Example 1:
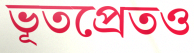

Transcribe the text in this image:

ভূতপ্রেতও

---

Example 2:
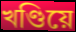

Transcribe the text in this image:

খণ্ডিয়ে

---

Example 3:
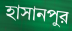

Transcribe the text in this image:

হাসানপুর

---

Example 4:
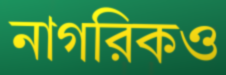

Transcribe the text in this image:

নাগরিকও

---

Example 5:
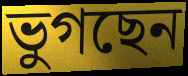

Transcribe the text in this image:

ভুগছেন